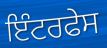
ਇੰਟਰਫੇਸ